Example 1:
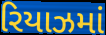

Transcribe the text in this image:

રિયાઝમાં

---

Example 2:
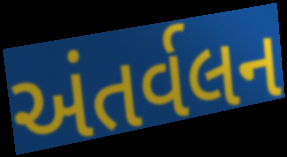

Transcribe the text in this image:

અંતર્વલન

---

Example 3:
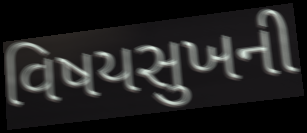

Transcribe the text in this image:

વિષયસુખની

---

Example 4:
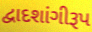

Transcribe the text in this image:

દ્વાદશાંગીરૂપ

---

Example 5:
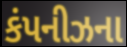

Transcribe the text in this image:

કંપનીઝના